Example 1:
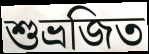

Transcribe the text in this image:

শুভ্রজিত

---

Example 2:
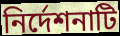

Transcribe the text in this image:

নির্দেশনাটি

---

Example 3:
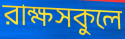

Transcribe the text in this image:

রাক্ষসকুলে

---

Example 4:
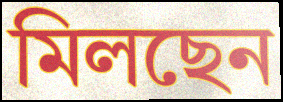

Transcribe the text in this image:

মিলছেন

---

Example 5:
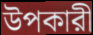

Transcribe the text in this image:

উপকারী